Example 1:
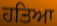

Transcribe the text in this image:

ਹਤਿਆ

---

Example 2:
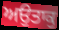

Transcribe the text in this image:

ਅਉਤਾਕੁ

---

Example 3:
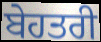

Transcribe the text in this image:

ਬੇਹਤਰੀ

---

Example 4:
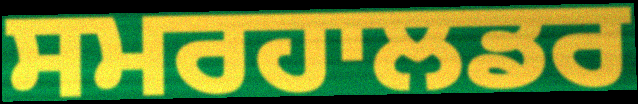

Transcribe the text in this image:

ਸਮਰਹਾਲਡਰ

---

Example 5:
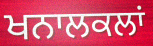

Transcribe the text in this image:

ਖਨਾਲਕਲਾਂ